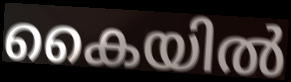
കൈയിൽ